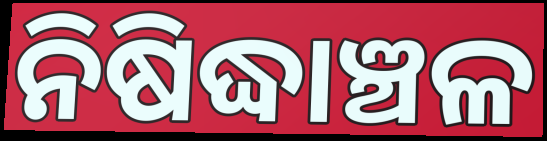
ନିଷିଦ୍ଧାଞ୍ଚଳ